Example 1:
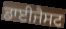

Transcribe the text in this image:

ਡਾਈਜੈਸਟ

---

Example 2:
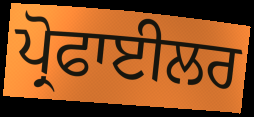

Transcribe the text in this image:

ਪ੍ਰੋਫਾਈਲਰ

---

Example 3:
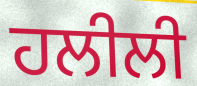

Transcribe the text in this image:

ਹਲੀਲੀ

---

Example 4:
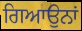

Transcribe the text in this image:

ਗਿਆਉਨਾਂ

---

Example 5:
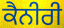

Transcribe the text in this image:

ਕੈਨੀਰੀ